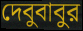
দেবুবাবুর